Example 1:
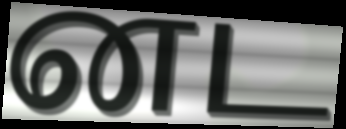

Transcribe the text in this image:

னட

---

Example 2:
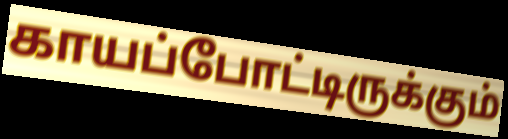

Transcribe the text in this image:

காயப்போட்டிருக்கும்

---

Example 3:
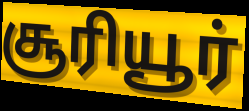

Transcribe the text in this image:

சூரியூர்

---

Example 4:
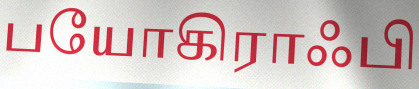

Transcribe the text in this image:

பயோகிராஃபி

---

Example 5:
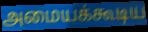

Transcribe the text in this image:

அமையக்கூடிய